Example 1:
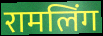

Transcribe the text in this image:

रामलिंग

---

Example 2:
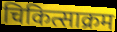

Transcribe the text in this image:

चिकित्साक्रम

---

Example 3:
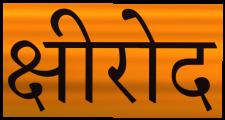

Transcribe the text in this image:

क्षीरोद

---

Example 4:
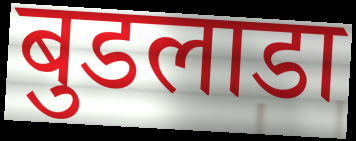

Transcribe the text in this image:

बुडलाडा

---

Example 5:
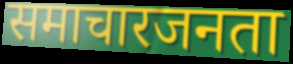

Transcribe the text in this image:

समाचारजनता